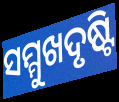
ସମ୍ମୁଖଦୃଷ୍ଟି